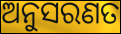
ଅନୁସରଣତ